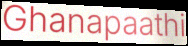
Ghanapaathi